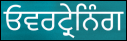
ਓਵਰਟ੍ਰੇਨਿੰਗ